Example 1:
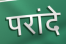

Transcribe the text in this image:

परांदे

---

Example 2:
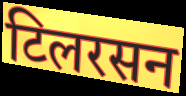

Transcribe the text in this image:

टिलरसन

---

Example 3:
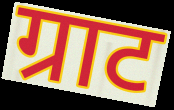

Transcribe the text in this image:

ग्राट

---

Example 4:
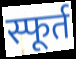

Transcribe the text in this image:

स्‍फूर्त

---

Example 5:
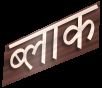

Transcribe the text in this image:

ब्लाक